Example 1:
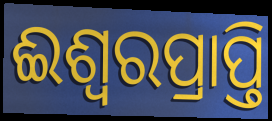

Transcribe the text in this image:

ଈଶ୍ଵରପ୍ରାପ୍ତି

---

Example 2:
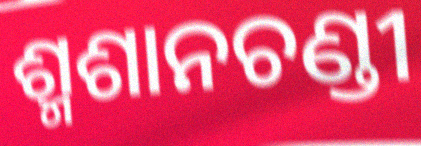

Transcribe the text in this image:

ଶ୍ମଶାନଚଣ୍ଡୀ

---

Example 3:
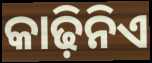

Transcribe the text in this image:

କାଢ଼ିନିଏ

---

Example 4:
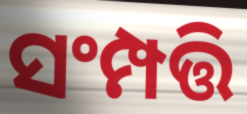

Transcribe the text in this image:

ସଂମ୍ପତ୍ତି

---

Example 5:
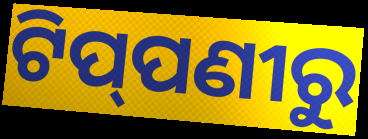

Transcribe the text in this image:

ଟିପ୍‌ପଣୀରୁ